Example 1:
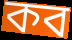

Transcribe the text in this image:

কব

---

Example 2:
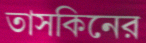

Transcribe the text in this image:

তাসকিনের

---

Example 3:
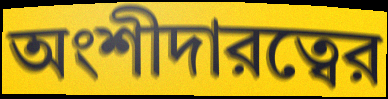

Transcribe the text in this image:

অংশীদারত্বের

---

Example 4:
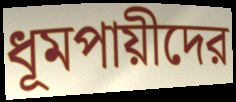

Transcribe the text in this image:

ধূমপায়ীদের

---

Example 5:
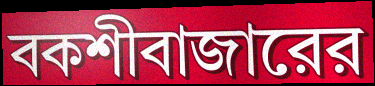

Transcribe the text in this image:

বকশীবাজারের